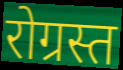
रोग्रस्त